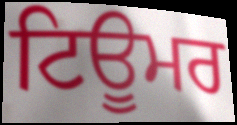
ਟਿਊਮਰ